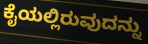
ಕೈಯಲ್ಲಿರುವುದನ್ನು